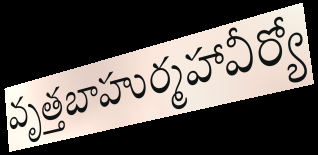
వృత్తబాహుర్మహావీర్యో